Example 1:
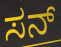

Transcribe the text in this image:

ಸನ್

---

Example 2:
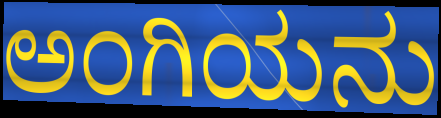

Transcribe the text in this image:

ಅಂಗಿಯನು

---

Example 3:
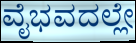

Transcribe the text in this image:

ವೈಭವದಲ್ಲೇ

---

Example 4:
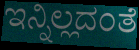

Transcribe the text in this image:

ಇನ್ನಿಲ್ಲದಂತೆ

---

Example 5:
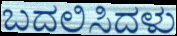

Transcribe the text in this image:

ಬದಲಿಸಿದಳು